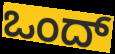
ಒಂದ್